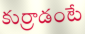
కుర్రాడంటే